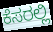
ಕೆಸರಲ್ಲಿ